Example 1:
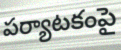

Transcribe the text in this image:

పర్యాటకంపై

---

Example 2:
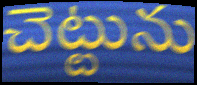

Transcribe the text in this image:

చెట్టును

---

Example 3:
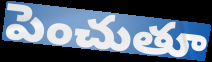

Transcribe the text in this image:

పెంచుతూ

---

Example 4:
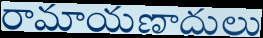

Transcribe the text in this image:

రామాయణాదులు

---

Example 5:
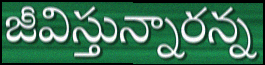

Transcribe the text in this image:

జీవిస్తున్నారన్న